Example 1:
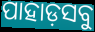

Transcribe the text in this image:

ପାହାଡ଼ସବୁ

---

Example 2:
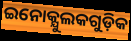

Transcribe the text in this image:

ଇନୋକ୍ଯୁଲକଗୁଡ଼ିକ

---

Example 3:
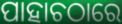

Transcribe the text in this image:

ପାହାଚଠାରେ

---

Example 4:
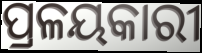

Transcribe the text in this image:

ପ୍ରଳୟକାରୀ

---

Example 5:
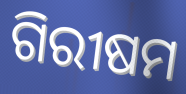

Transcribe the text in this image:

ଗିରୀଷମ